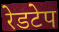
रेडटेप